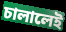
চালালেই